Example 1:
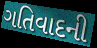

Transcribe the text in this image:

ગતિવાદની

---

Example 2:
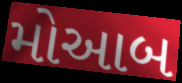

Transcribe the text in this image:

મોઆબ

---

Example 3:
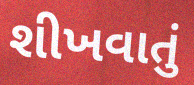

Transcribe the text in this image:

શીખવાતું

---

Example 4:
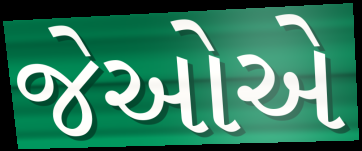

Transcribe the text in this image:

જેઓએ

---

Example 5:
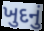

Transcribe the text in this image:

ખુદનું